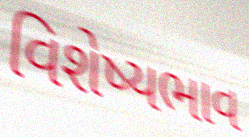
વિશેષ્યભાવ